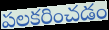
పలకరించడం